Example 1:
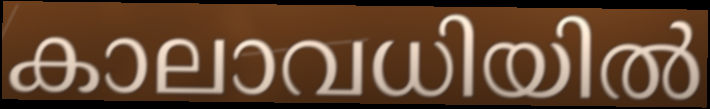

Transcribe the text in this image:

കാലാവധിയിൽ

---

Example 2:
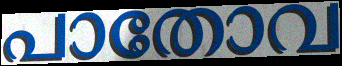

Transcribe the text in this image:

പാതോവ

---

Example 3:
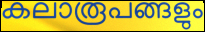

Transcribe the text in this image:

കലാരൂപങ്ങളും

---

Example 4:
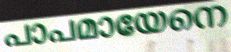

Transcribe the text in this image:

പാപമായേനെ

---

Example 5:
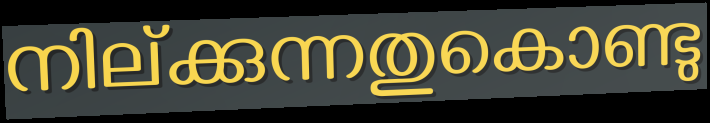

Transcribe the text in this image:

നില്ക്കുന്നതുകൊണ്ടു